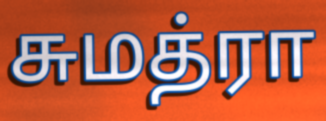
சுமத்ரா